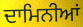
ਦਾਮਿਨੀਆਂ